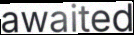
awaited